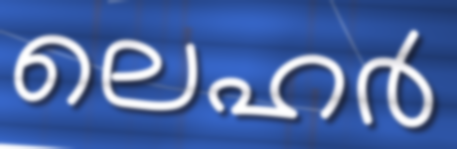
ലെഹർ